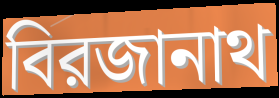
বিরজানাথ